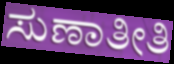
ಸುಣಾತೀತಿ